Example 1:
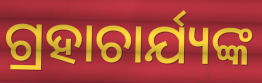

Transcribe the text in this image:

ଗ୍ରହାଚାର୍ଯ୍ୟଙ୍କ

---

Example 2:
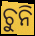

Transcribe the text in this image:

ଚୁନି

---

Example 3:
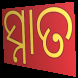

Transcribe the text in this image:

ସ୍ନାତ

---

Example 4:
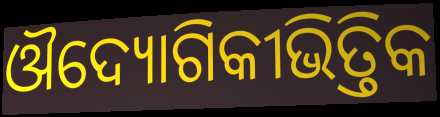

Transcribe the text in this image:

ଔଦ୍ୟୋଗିକୀଭିତ୍ତିକ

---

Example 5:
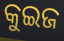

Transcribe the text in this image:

କୁଇଜ